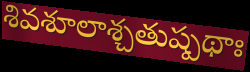
శివశూలాశ్చతుష్పథాః